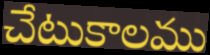
చేటుకాలము